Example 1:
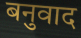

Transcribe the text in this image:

बनुवाद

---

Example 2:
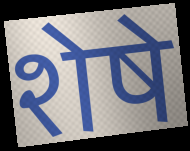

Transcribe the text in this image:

शेषे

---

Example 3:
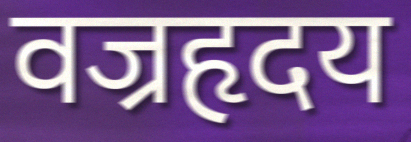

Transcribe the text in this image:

वज्रहृदय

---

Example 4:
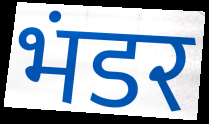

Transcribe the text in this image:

भंडर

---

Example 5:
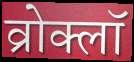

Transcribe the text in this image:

व्रोक्लॉ